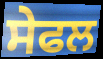
ਸੇਫਲ